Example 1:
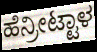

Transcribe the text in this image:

ಹೆನ್ರೀಟ್ಟಾಳ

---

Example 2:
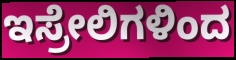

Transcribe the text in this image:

ಇಸ್ರೇಲಿಗಳಿಂದ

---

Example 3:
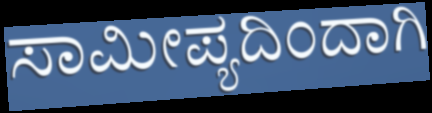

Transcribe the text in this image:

ಸಾಮೀಪ್ಯದಿಂದಾಗಿ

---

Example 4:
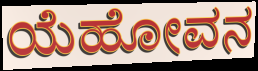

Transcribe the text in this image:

ಯೆಹೋವನ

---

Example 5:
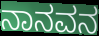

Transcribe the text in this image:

ನಾನವನ